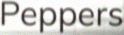
Peppers